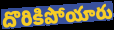
దొరికిపోయారు